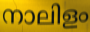
നാലിളം